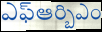
ఎఫ్ఆర్బిఎం